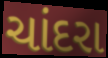
ચાંદરા